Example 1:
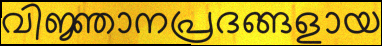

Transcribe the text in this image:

വിജ്ഞാനപ്രദങ്ങളായ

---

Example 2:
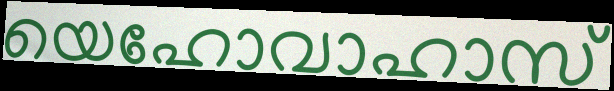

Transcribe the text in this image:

യെഹോവാഹാസ്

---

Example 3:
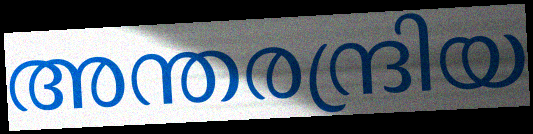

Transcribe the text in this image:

അന്തരന്ദ്രിയ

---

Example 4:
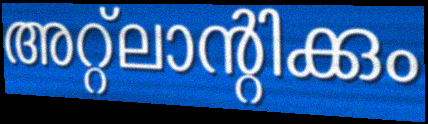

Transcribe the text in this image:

അറ്റ്ലാന്റിക്കും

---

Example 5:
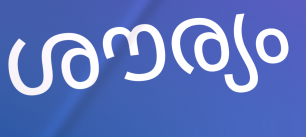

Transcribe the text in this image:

ശൗര്യം